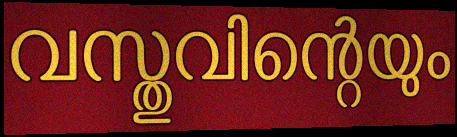
വസ്തുവിന്റെയും